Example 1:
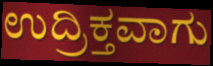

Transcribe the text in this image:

ಉದ್ರಿಕ್ತವಾಗು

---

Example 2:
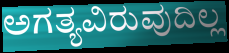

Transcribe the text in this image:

ಅಗತ್ಯವಿರುವುದಿಲ್ಲ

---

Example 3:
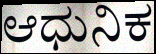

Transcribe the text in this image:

ಆಧುನಿಕ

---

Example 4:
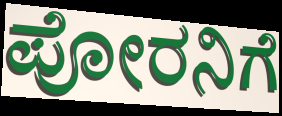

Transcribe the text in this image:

ಪೋರನಿಗೆ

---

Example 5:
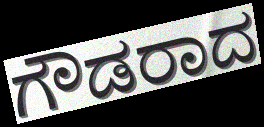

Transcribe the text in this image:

ಗೌಡರಾದ